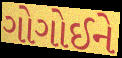
ગોગોઈને